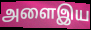
அளைஇய